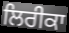
ਲਿਰੀਕਾ